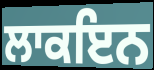
ਲਾਕਇਨ